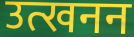
उत्खनन